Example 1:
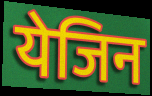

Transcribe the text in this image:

येजिन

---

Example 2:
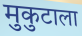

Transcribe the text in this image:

मुकुटाला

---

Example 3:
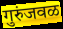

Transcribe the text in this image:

गुरुंजवळ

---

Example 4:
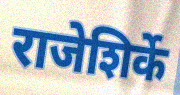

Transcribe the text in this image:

राजेशिर्के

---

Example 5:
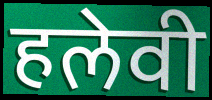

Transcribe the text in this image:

हलेवी